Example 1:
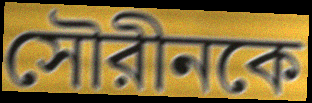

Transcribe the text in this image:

সৌরীনকে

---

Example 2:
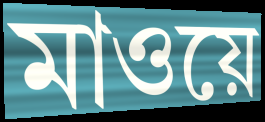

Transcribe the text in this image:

মাওয়ে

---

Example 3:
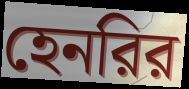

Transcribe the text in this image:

হেনরির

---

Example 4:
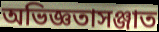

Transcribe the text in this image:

অভিজ্ঞতাসঞ্জাত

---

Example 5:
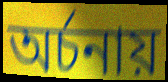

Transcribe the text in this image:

অর্চনায়